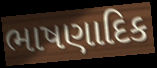
ભાષણાદિક